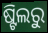
ଷ୍ଟିଲରୁ